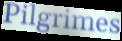
Pilgrimes